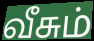
வீசும்